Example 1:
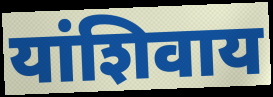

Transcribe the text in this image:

यांशिवाय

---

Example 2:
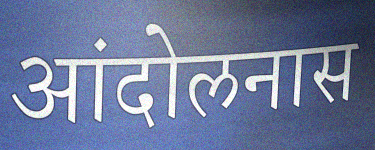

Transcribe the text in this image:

आंदोलनास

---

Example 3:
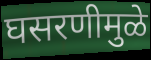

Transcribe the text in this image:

घसरणीमुळे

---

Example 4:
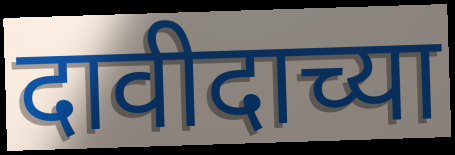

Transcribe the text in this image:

दावीदाच्या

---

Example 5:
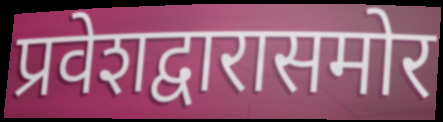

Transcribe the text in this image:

प्रवेशद्वारासमोर